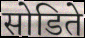
सोडिते